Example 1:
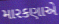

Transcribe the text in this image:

મારકણાએ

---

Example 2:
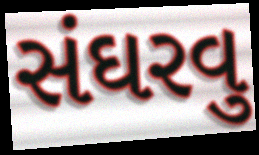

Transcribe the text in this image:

સંઘરવુ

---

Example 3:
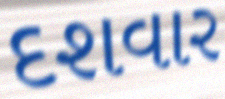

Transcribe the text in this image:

દશવાર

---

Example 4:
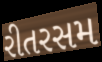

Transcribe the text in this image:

રીતરસમ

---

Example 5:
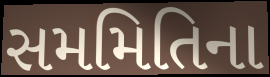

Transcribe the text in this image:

સમમિતિના